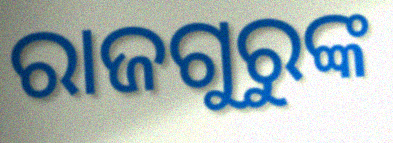
ରାଜଗୁରୁଙ୍କ